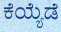
ಕೆಯ್ಯೆಡೆ